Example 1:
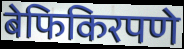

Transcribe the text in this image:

बेफिकिरपणे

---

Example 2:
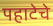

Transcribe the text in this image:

पहाटेचे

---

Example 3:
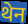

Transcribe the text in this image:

थेन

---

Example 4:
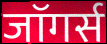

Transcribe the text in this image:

जॉगर्स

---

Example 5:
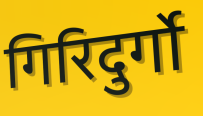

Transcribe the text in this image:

गिरिदुर्गो